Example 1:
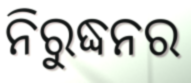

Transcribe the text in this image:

ନିରୁଦ୍ଧନର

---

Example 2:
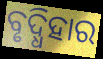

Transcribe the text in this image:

ବୃଦ୍ଧିହାର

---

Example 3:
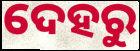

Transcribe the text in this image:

ଦେହରୁ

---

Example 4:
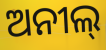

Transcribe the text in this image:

ଅନୀଲ୍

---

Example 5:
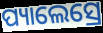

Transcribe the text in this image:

ପ୍ୟାଲେସ୍ରେ